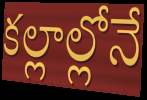
కల్లాల్లోనే